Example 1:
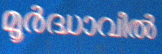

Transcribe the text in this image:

മൂർദ്ധാവിൽ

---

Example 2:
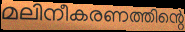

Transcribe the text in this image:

മലിനീകരണത്തിന്റെ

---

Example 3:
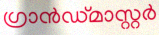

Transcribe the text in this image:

ഗ്രാൻഡ്മാസ്റ്റർ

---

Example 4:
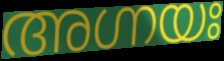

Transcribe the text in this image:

അഗ്നയഃ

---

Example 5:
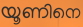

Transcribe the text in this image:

യൂണിനെ